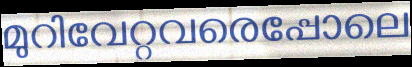
മുറിവേറ്റവരെപ്പോലെ